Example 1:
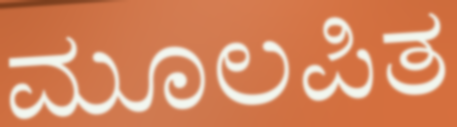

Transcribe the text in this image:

ಮೂಲಪಿತ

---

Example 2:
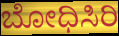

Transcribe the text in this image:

ಬೋಧಿಸಿರಿ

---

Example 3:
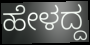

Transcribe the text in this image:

ಹೇಳದ್ದ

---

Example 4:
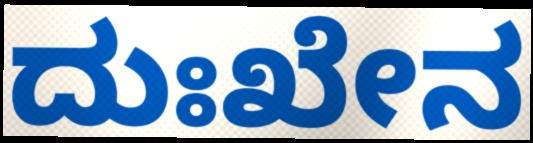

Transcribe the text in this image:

ದುಃಖೇನ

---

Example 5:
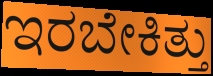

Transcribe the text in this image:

ಇರಬೇಕಿತ್ತು